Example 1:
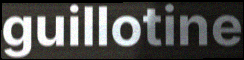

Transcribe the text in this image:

guillotine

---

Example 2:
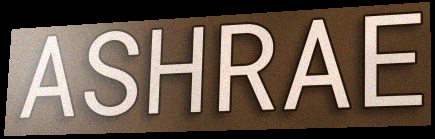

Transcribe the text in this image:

ASHRAE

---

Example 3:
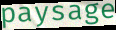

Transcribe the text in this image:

paysage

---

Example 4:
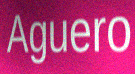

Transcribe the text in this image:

Aguero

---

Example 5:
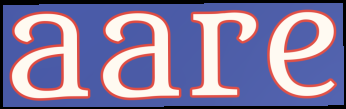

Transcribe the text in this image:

aare